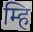
म्हि